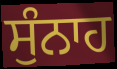
ਸੁੰਨਾਹ